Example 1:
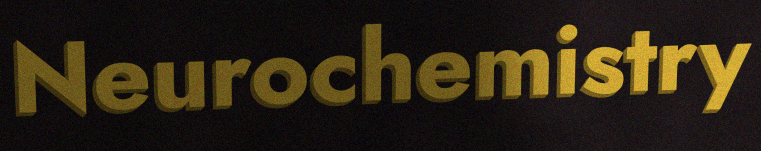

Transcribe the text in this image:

Neurochemistry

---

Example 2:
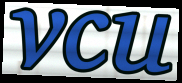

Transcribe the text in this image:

vcu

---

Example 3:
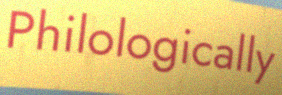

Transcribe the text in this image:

Philologically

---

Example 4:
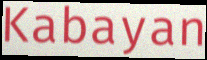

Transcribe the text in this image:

Kabayan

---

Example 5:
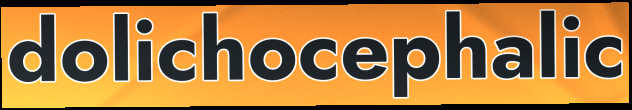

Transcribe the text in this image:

dolichocephalic